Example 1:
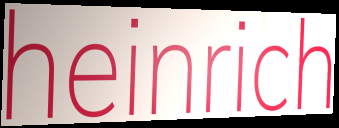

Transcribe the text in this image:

heinrich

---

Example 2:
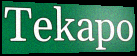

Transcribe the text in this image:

Tekapo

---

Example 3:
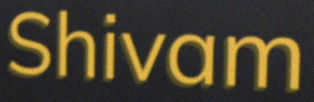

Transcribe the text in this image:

Shivam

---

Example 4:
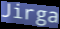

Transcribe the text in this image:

Jirga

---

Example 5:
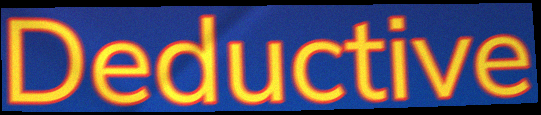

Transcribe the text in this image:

Deductive